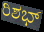
ರಿಶಭ್